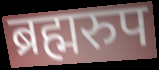
ब्रह्मरुप